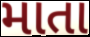
માતા